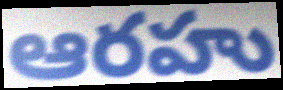
ఆరహు